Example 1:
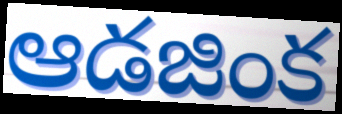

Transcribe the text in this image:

ఆడజింక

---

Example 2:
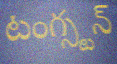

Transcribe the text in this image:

టంగ్స్టన్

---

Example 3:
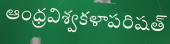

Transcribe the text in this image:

ఆంధ్రవిశ్వకళాపరిషత్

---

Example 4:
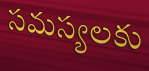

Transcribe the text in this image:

సమస్యలకు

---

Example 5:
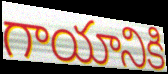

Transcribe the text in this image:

గాయానికి